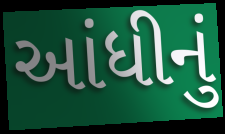
આંધીનું